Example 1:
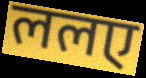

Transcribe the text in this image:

ललए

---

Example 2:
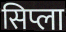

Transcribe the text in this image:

सिप्ला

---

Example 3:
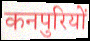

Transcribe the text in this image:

कनपुरियों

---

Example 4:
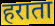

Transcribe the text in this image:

हराता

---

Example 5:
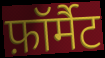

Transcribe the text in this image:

फ़ॉर्मैट